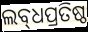
ଲବ୍‌ଧପ୍ରତିଷ୍ଠ